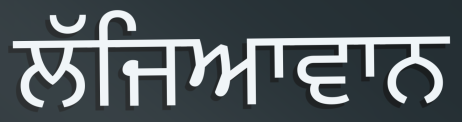
ਲੱਜਿਆਵਾਨ